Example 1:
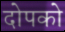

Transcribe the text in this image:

दोपको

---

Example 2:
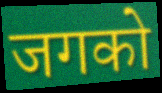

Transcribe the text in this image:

जगको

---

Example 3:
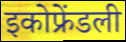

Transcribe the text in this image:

इकोफ्रेंडली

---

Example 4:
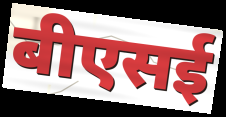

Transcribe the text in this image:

बीएसई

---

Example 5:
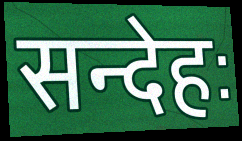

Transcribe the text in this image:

सन्देहः